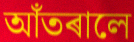
আঁতৰালে